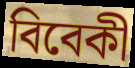
বিবেকী